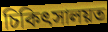
চিকিৎসালয়ত